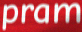
pram